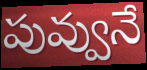
పువ్వునే